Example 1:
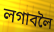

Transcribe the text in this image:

লগাবলৈ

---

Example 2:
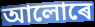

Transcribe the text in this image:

আলোৰে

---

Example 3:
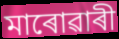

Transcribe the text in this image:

মাৰোৱাৰী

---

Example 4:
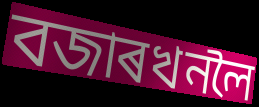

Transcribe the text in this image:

বজাৰখনলৈ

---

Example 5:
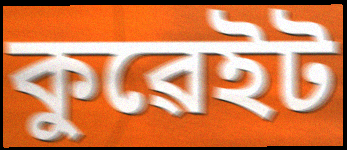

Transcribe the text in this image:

কুৱেইট